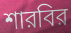
শারবির